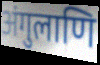
अंगुलाणि